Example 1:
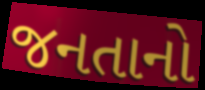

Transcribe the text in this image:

જનતાનો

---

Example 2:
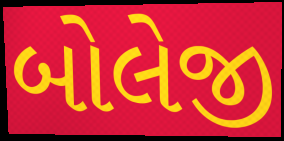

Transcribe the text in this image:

બોલેજી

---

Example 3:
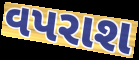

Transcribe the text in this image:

વપરાશ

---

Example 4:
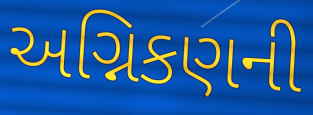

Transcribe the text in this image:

અગ્નિકણની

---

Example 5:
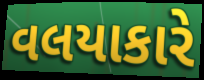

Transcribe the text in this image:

વલયાકારે